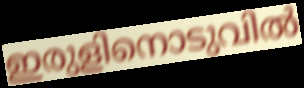
ഇരുളിനൊടുവിൽ